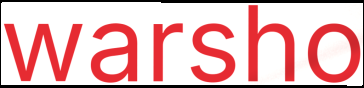
warsho